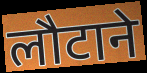
लौटाने